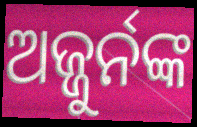
ଅଜ୍ଜୁର୍ନଙ୍କ